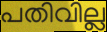
പതിവില്ല